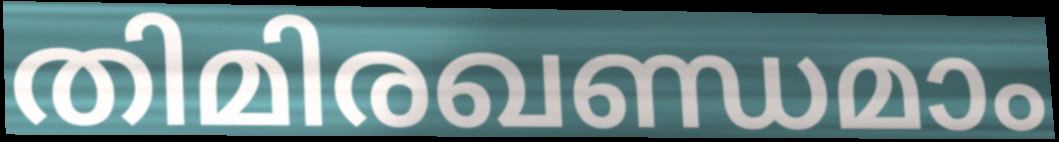
തിമിരഖണ്ഡമാം